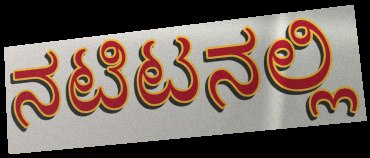
ನಟಿಟನಲ್ಲಿ